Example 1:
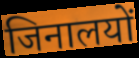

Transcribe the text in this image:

जिनालयों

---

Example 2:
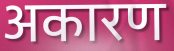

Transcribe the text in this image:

अकारण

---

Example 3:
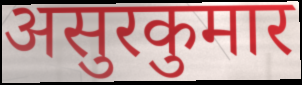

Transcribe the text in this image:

असुरकुमार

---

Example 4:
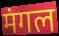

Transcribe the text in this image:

मंगल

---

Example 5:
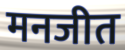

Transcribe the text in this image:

मनजीत